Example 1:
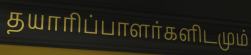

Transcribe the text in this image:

தயாரிப்பாளர்களிடமும்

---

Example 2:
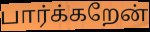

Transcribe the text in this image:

பார்க்கறேன்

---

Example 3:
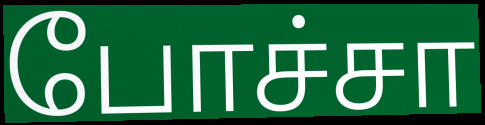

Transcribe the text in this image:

போச்சா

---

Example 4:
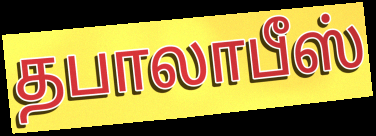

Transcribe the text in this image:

தபாலாபீஸ்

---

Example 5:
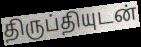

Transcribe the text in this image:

திருப்தியுடன்